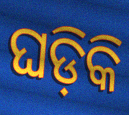
ଘଡ଼ିକି